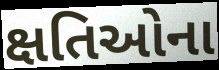
ક્ષતિઓના